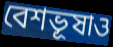
বেশভূষাও